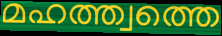
മഹത്ത്വത്തെ